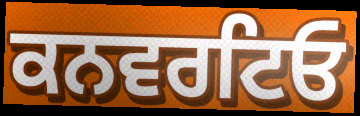
ਕਨਵਰਟਿਓ